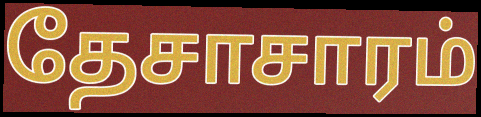
தேசாசாரம்